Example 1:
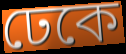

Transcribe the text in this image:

ঢেকে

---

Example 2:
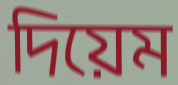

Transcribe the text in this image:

দিয়েম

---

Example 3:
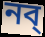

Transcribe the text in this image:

নব্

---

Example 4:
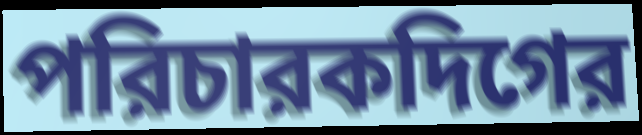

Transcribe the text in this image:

পরিচারকদিগের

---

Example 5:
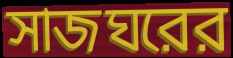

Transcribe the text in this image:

সাজঘরের